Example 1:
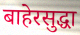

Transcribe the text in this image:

बाहेरसुद्धा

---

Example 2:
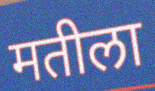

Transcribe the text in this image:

मतीला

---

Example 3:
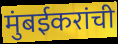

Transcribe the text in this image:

मुंबईकरांची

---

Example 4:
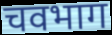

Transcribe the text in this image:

चवभाग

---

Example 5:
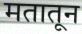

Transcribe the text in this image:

मतातून